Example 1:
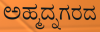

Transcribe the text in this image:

ಅಹ್ಮದ್ನಗರದ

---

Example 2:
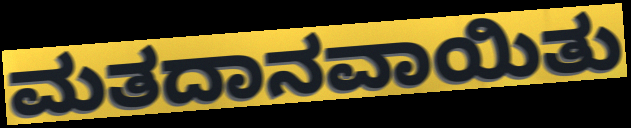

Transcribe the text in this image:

ಮತದಾನವಾಯಿತು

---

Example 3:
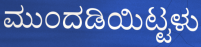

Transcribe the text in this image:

ಮುಂದಡಿಯಿಟ್ಟಳು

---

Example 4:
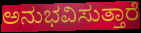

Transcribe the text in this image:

ಅನುಭವಿಸುತ್ತಾರೆ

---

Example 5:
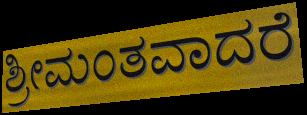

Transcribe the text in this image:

ಶ್ರೀಮಂತವಾದರೆ